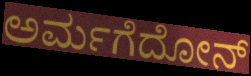
ಅರ್ಮಗೆದೋನ್